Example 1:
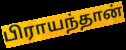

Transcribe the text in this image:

பிராயந்தான்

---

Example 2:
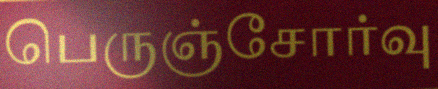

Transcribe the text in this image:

பெருஞ்சோர்வு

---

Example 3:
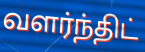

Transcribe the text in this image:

வளர்ந்திட்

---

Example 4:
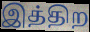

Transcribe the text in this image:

இத்திற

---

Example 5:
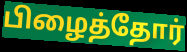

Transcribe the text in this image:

பிழைத்தோர்